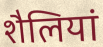
शैलियां